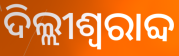
ଦିଲ୍ଲୀଶ୍ୱରାବ୍ଦ